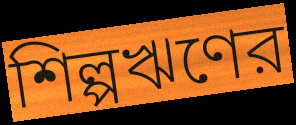
শিল্পঋণের